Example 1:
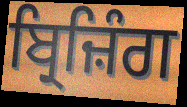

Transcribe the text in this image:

ਬ੍ਰਿਜ਼ਿੰਗ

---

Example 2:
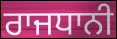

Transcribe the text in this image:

ਰਾਜਧਾਨੀ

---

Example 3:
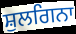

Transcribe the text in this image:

ਸ਼ੁਲਗਿਨਾ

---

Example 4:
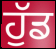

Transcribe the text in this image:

ਹੁੱਡ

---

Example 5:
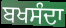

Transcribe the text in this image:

ਬਖਸੰਦਾ